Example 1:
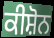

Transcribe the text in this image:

ਕੀਸ਼ੋਨ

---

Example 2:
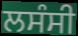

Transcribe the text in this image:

ਲਸੰਸੀ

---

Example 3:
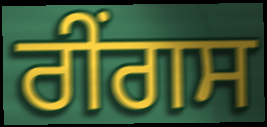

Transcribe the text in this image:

ਰੀਂਗਸ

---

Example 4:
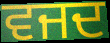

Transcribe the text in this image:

ਵਜਦ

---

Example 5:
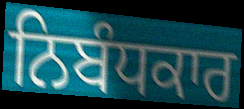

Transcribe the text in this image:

ਨਿਬੰਧਕਾਰ